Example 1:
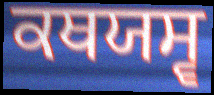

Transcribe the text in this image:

ਕਥਯਸ੍ਵ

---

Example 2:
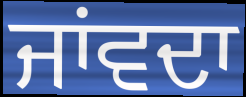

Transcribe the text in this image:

ਜਾਂਵਦਾ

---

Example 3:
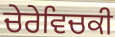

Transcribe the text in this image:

ਚੇਰੇਵਿਚਕੀ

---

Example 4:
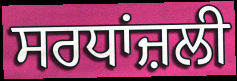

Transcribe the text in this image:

ਸਰਧਾਂਜ਼ਲੀ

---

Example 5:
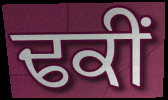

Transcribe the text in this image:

ਢਕੀਂ